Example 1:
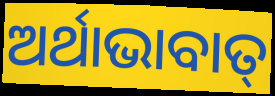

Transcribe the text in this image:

ଅର୍ଥାଭାବାତ୍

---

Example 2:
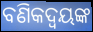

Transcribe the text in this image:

ବଣିକଦ୍ଵୟଙ୍କ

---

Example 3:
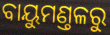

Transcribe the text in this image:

ବାୟୁମଣ୍ତଳରୁ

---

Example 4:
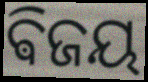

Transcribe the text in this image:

ଵିଜୟ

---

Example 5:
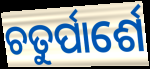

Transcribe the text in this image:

ଚତୁର୍ପାର୍ଶେ